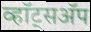
व्हॉट्सॲप